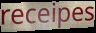
receipes